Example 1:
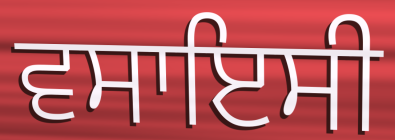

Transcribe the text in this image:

ਵਸਾਇਸੀ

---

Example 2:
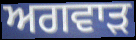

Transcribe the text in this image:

ਅਗਵਾੜ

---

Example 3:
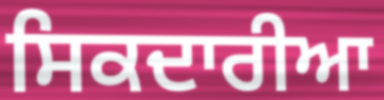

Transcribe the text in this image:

ਸਿਕਦਾਰੀਆ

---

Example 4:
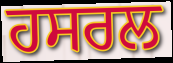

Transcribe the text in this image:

ਹਸਰਲ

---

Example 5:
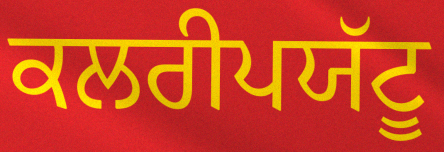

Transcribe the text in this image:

ਕਲਰੀਪਯੱਟੂ